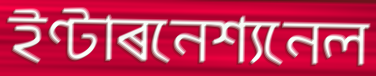
ইণ্টাৰনেশ্যনেল